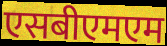
एसबीएमएम